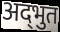
अद्‌भुत